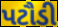
પટૌડી